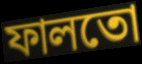
ফালতো